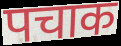
पचाक